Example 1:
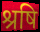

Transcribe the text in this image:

श्रषि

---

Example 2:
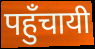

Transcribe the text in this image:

पहुँचायी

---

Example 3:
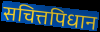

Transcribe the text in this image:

सचित्तपिधान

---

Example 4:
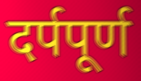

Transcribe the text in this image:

दर्पपूर्ण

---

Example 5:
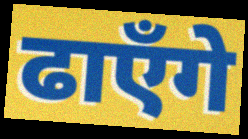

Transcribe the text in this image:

ढाएँगे